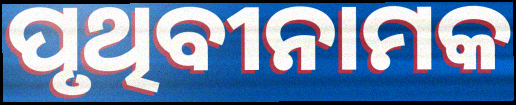
ପୃଥିବୀନାମକ